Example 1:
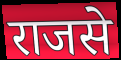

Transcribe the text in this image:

राजसे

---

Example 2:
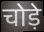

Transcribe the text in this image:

चोड़े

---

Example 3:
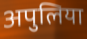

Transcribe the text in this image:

अपुलिया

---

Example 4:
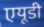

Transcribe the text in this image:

एयूडी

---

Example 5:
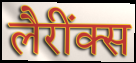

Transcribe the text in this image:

लैरींक्स